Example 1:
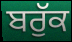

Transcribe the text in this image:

ਬਰੁੱਕ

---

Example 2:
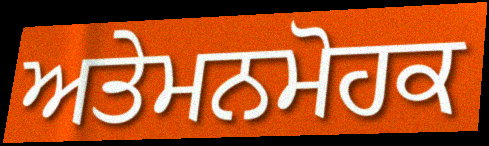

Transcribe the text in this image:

ਅਤੇਮਨਮੋਹਕ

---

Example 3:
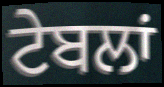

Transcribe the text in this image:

ਟੇਬਲਾਂ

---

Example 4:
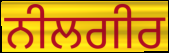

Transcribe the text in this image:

ਨੀਲਗੀਰ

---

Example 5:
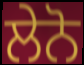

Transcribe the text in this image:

ਲੇਨੋ